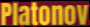
Platonov